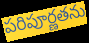
పరిపూర్ణతను